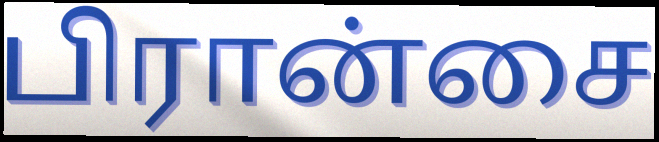
பிரான்சை